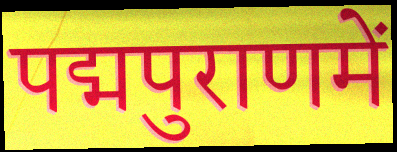
पद्मपुराणमें